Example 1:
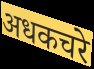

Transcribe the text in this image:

अधकचरे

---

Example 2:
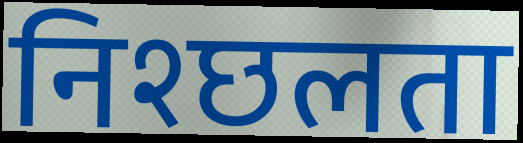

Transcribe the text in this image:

निश्छलता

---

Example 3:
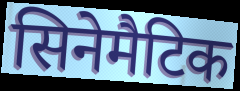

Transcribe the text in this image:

सिनेमैटिक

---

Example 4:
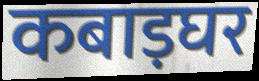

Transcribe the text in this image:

कबाड़घर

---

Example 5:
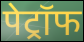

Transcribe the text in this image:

पेट्रॉफ